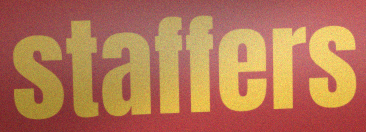
staffers